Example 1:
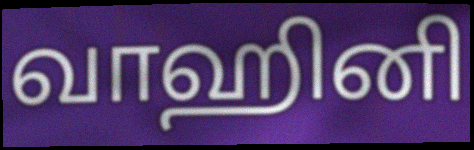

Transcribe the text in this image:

வாஹினி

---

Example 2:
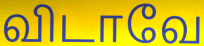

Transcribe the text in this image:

விடாவே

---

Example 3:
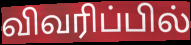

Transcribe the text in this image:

விவரிப்பில்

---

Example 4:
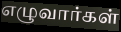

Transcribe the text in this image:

எழுவார்கள்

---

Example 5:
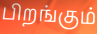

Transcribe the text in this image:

பிறங்கும்